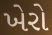
ખેરો